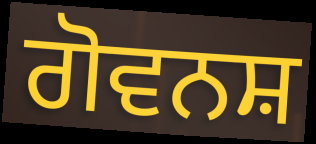
ਗੋਵਨਸ਼